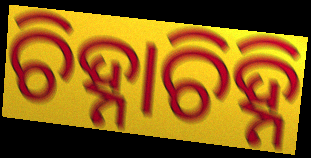
ଚିହ୍ନାଚିହ୍ନି